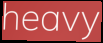
heavy